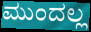
ಮುಂದಲ್ಲ